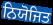
ਨਿਯੋਜਿਤ